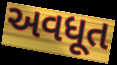
અવધૂત